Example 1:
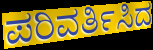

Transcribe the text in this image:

ಪರಿವರ್ತಿಸಿದ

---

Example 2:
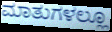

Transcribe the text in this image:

ಮಾತುಗಳಲ್ಲೂ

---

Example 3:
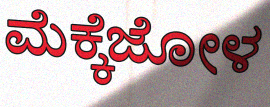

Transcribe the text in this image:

ಮೆಕ್ಕೆಜೋಳ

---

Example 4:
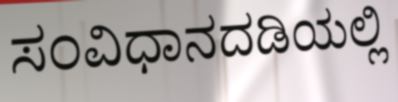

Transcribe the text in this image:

ಸಂವಿಧಾನದಡಿಯಲ್ಲಿ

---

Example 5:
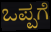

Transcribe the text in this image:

ಒಪ್ಪಗೆ